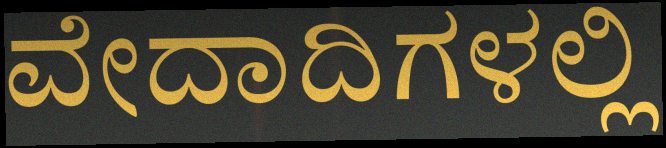
ವೇದಾದಿಗಳಲ್ಲಿ